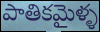
పాతికమైళ్ళ